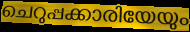
ചെറുപ്പക്കാരിയേയും